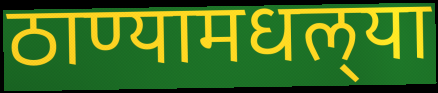
ठाण्यामधल्या